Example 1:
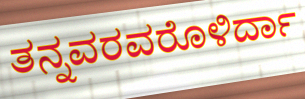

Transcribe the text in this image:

ತನ್ನವರವರೊಳಿರ್ದಾ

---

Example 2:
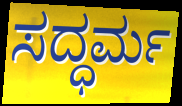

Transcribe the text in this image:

ಸದ್ಧರ್ಮ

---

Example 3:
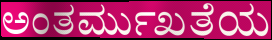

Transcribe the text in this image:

ಅಂತರ್ಮುಖತೆಯ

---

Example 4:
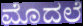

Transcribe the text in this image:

ಮೊದಲೆ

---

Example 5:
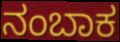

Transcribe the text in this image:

ನಂಬಾಕ